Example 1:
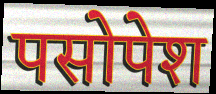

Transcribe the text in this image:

पसोपेश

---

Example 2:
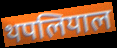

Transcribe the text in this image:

थपलियाल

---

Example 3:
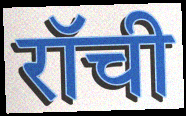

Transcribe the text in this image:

रॉची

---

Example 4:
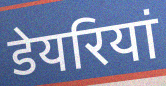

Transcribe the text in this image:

डेयरियां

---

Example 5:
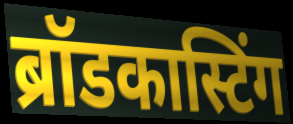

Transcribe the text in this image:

ब्रॉडकास्टिंग